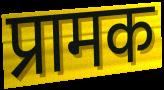
प्रामक